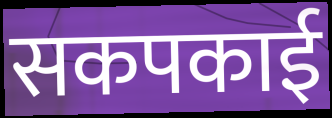
सकपकाई